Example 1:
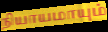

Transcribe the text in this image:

நியாயமாயும்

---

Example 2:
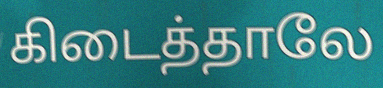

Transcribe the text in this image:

கிடைத்தாலே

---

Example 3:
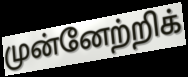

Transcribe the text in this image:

முன்னேற்றிக்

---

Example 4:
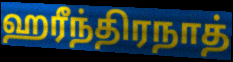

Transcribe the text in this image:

ஹரீந்திரநாத்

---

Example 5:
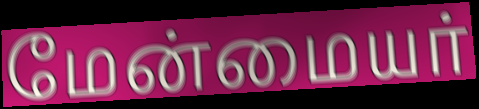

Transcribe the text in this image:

மேன்மையர்